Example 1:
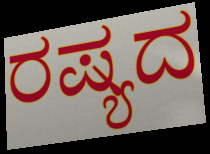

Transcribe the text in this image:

ರಷ್ಯದ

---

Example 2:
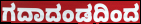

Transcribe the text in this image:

ಗದಾದಂಡದಿಂದ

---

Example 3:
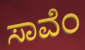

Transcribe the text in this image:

ಸಾವೆಂ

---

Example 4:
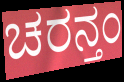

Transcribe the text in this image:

ಚರನ್ತಂ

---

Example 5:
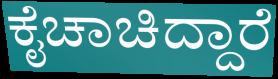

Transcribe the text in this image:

ಕೈಚಾಚಿದ್ದಾರೆ